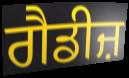
ਗੈਡੀਜ਼